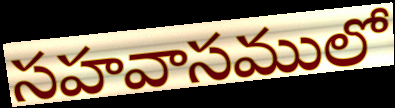
సహవాసములో